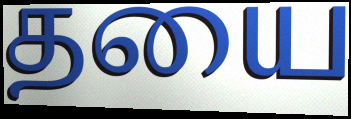
தயை